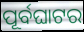
ପୂର୍ବଘାଟର